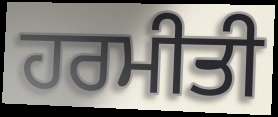
ਹਰਮੀਤੀ